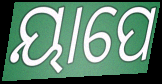
ୟାପେ